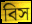
বিস